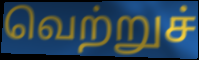
வெற்றுச்